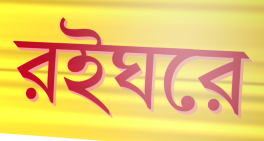
রইঘরে